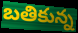
బతికున్న